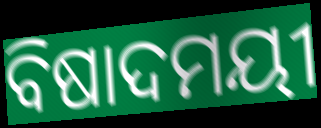
ବିଷାଦମୟୀ